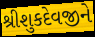
શ્રીશુકદેવજીને